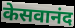
केसवानंद